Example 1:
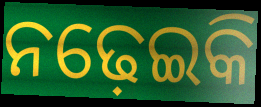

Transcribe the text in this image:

ନଢ଼େଇକି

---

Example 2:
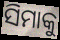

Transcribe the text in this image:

ସିମାକୁ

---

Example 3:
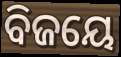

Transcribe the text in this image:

ବିଜୟେ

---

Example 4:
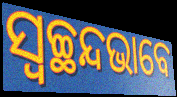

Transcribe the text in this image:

ସ୍ୱଚ୍ଛନ୍ଦଭାବେ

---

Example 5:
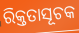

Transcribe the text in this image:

ରିକ୍ତତାସୂଚକ